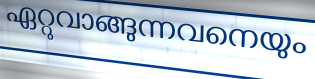
ഏറ്റുവാങ്ങുന്നവനെയും